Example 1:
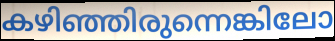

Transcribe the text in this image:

കഴിഞ്ഞിരുന്നെങ്കിലോ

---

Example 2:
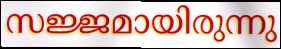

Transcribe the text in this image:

സജ്ജമായിരുന്നു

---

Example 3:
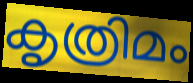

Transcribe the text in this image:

കൃത്രിമം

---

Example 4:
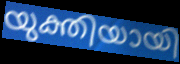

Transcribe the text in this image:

യുക്തിയായി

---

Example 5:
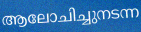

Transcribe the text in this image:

ആലോചിച്ചുനടന്ന